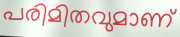
പരിമിതവുമാണ്